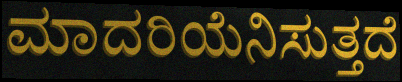
ಮಾದರಿಯೆನಿಸುತ್ತದೆ